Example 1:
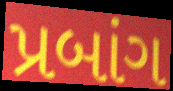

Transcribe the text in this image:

પ્રબાંગ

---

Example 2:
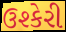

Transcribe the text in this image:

ઉશ્કેરી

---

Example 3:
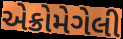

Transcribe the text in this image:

એક્રોમેગેલી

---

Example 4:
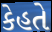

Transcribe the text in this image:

કેહતે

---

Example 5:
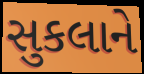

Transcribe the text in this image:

સુકલાને